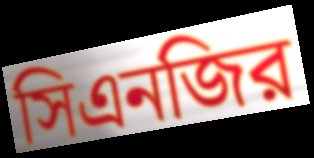
সিএনজির